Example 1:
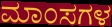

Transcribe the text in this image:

ಮಾಂಸಗಳ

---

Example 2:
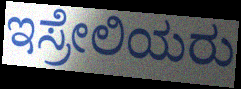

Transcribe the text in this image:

ಇಸ್ರೇಲಿಯರು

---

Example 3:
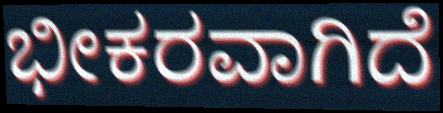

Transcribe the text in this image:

ಭೀಕರವಾಗಿದೆ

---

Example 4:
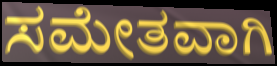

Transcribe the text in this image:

ಸಮೇತವಾಗಿ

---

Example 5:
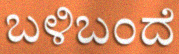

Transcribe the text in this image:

ಬಳಿಬಂದೆ